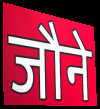
जौने